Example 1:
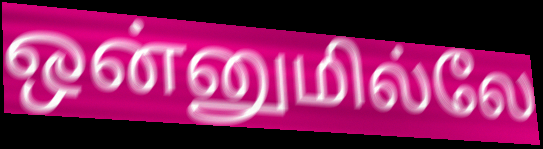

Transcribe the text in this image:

ஒன்னுமில்லே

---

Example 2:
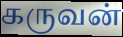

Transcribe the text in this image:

கருவன்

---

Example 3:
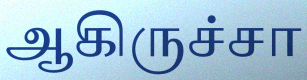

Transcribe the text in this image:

ஆகிருச்சா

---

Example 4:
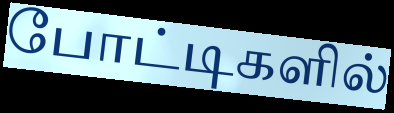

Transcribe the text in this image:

போட்டிகளில்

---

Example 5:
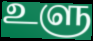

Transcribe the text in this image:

உளு